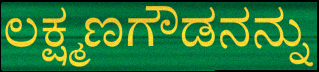
ಲಕ್ಷ್ಮಣಗೌಡನನ್ನು